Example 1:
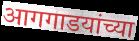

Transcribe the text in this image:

आगगाडयांच्या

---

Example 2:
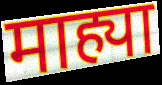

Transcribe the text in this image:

माह्या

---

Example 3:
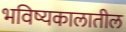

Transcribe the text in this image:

भविष्यकालातील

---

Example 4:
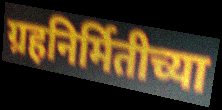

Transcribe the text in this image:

ग्रहनिर्मितीच्या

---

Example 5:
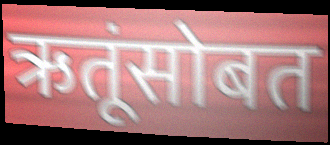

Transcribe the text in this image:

ऋतूंसोबत